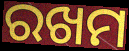
ରଖମ